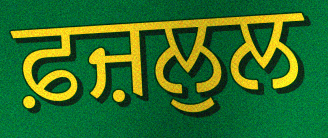
ਫ਼ਜ਼ਲੁਲ